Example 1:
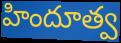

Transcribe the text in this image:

హిందూత్వ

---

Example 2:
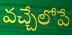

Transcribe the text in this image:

వచ్చేలోపే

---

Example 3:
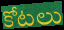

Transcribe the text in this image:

కోటలు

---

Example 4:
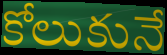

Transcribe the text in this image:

కోలుకునే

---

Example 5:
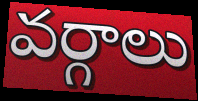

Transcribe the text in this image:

వర్గాలు